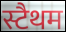
स्टैथम